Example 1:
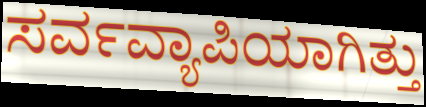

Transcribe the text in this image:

ಸರ್ವವ್ಯಾಪಿಯಾಗಿತ್ತು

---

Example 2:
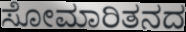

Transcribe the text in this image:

ಸೋಮಾರಿತನದ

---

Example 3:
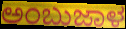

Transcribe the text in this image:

ಅಂಬುಜಾಳ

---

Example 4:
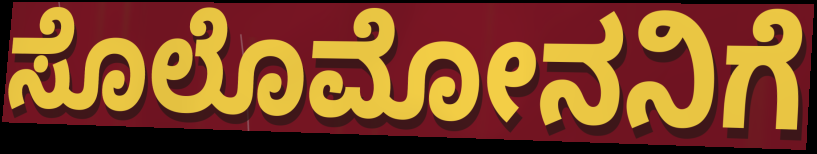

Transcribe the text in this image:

ಸೊಲೊಮೋನನಿಗೆ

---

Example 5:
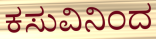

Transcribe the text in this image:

ಕಸುವಿನಿಂದ